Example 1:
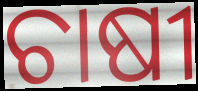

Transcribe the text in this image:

ଚାଷୀ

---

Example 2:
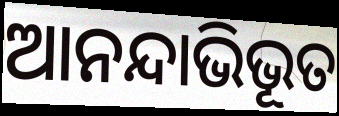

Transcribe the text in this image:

ଆନନ୍ଦାଭିଭୂତ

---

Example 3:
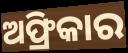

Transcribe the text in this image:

ଅଫ୍ରିକାର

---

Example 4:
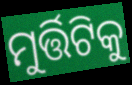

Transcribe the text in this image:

ମୁର୍ତ୍ତିଟିକୁ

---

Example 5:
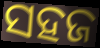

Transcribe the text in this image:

ସହଜ